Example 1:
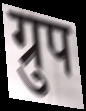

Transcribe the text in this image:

ग्रुप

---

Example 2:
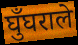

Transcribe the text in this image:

घुँघराले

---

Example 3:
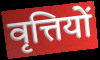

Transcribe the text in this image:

वृत्तियों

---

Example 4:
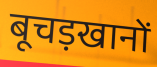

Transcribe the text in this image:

बूचड़खानों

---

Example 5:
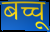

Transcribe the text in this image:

बच्चू